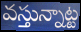
వస్తున్నాట్ట